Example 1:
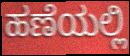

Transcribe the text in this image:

ಹಣೆಯಲ್ಲಿ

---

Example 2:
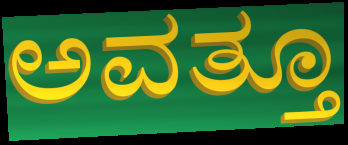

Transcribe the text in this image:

ಅವತ್ತೂ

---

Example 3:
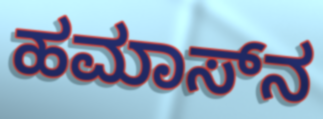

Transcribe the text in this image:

ಹಮಾಸ್‌ನ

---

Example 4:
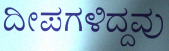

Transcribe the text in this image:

ದೀಪಗಳಿದ್ದವು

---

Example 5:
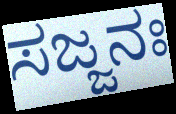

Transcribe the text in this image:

ಸಜ್ಜನಃ